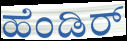
ಹೆಂಡಿರ್